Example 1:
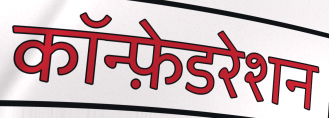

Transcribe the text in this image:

कॉन्फ़ेडरेशन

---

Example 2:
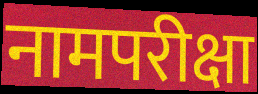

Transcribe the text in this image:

नामपरीक्षा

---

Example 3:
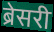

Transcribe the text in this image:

ब्रेसरी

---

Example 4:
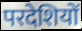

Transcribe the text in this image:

परदेशियों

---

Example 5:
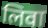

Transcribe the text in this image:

लिवा